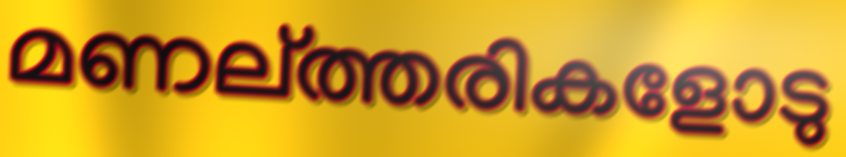
മണല്ത്തരികളോടു